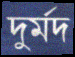
দুর্মদ